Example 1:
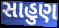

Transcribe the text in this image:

સાહુણ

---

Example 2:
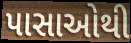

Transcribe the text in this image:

પાસાઓથી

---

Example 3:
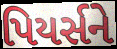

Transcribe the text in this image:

પિયર્સને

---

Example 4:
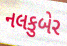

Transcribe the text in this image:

નલકુબેર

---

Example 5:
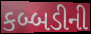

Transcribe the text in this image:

કબ્બડીની